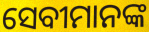
ସେବୀମାନଙ୍କ